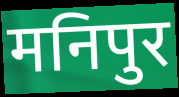
मनिपुर